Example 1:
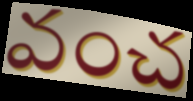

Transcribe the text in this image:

వంచ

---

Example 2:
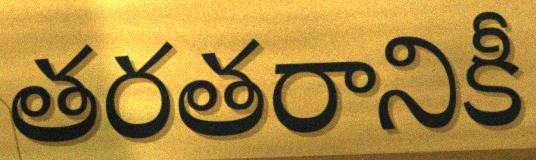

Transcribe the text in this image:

తరతరానికీ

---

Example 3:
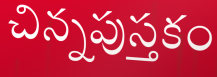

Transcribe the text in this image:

చిన్నపుస్తకం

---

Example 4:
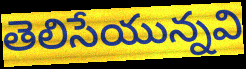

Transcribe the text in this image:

తెలిసేయున్నవి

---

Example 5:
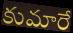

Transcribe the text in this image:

కుమారే